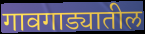
गावगाड्यातील